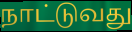
நாட்டுவது